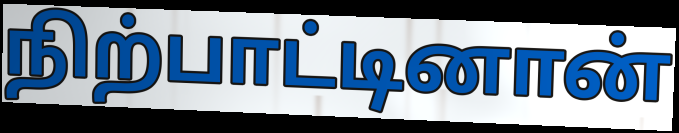
நிற்பாட்டினான்